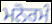
ਮਨੋਰਮੰ